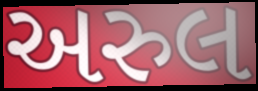
અરુલ